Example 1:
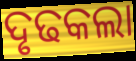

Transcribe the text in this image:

ଦୃଢକଲା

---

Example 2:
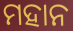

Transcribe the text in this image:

ମହାନ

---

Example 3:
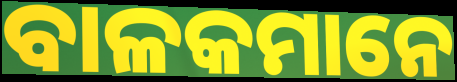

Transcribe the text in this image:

ବାଳକମାନେ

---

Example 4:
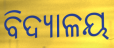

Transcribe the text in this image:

ବିଦ୍ଯାଳୟ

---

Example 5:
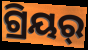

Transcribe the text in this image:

ଗ୍ରିୟର୍